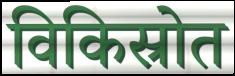
विकिस्रोत